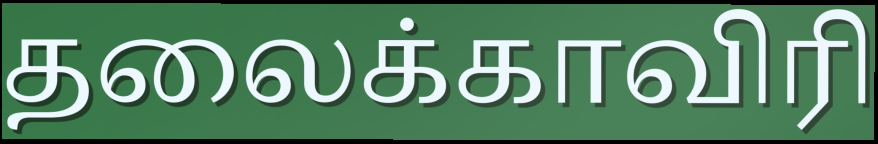
தலைக்காவிரி